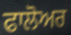
ਫਾਲੋਅਰ